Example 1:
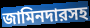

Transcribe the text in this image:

জামিনদারসহ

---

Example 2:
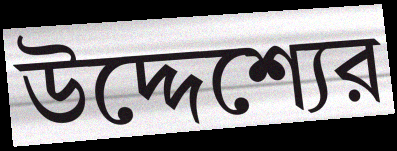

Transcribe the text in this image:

উদ্দেশ্যের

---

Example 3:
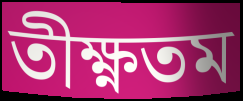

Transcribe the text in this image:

তীক্ষ্ণতম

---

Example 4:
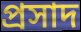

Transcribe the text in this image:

প্রসাদ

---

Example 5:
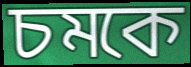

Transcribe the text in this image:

চমকে